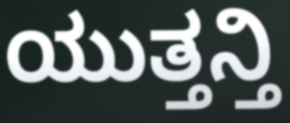
ಯುತ್ತನ್ತಿ